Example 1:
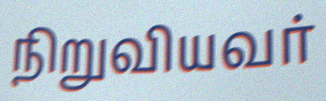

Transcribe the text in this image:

நிறுவியவர்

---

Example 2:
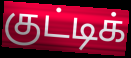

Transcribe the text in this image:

குட்டிக்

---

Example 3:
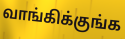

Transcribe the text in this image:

வாங்கிக்குங்க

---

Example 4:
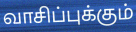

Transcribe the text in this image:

வாசிப்புக்கும்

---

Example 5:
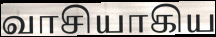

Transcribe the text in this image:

வாசியாகிய